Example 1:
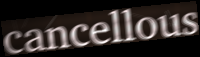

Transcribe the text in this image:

cancellous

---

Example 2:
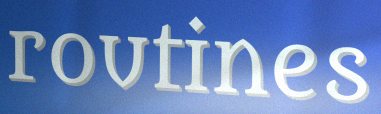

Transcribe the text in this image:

routines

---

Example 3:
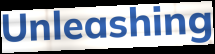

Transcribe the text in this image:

Unleashing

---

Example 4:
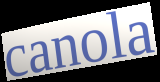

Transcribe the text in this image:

canola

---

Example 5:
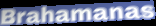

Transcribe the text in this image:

Brahamanas